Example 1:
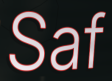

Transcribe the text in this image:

Saf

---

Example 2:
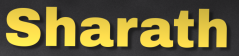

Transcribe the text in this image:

Sharath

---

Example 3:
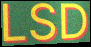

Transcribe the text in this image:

LSD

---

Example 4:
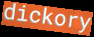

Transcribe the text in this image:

dickory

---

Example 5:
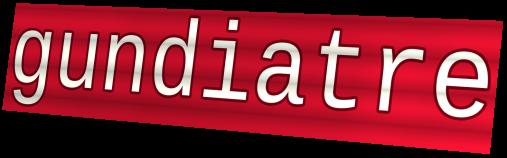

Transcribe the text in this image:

gundiatre